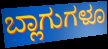
ಬ್ಲಾಗುಗಳೂ